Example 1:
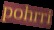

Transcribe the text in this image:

pohrri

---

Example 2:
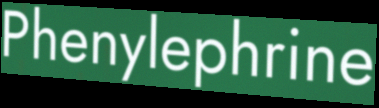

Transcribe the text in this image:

Phenylephrine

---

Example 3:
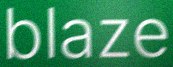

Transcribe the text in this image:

blaze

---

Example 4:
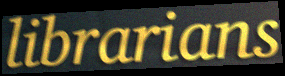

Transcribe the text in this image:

librarians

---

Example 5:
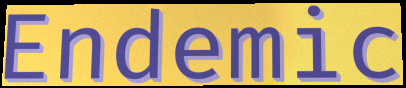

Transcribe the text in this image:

Endemic